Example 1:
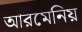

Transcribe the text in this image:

আরমেনিয়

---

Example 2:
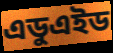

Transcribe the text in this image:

এডুএইড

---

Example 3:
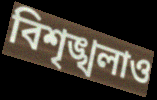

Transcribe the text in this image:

বিশৃঙ্খলাও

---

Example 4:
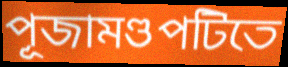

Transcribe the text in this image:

পূজামণ্ডপটিতে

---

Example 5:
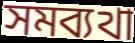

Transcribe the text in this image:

সমব্যথা